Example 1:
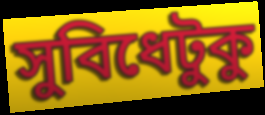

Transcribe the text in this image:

সুবিধেটুকু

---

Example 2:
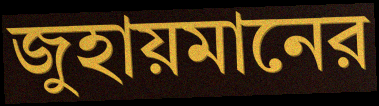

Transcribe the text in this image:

জুহায়মানের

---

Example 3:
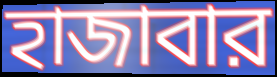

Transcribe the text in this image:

হাজাবার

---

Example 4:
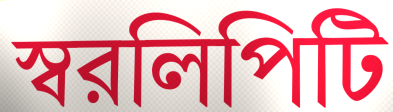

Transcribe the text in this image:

স্বরলিপিটি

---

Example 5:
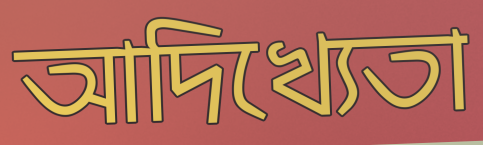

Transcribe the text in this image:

আদিখ্যেতা